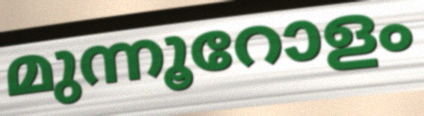
മുന്നൂറോളം